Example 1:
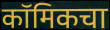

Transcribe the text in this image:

कॉमिकचा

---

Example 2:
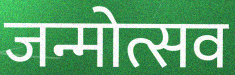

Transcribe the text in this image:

जन्मोत्सव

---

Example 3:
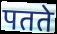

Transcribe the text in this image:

पतते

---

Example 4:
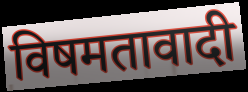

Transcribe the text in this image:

विषमतावादी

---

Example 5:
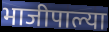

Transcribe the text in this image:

भाजीपाल्या